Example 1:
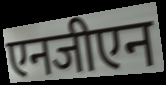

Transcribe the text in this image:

एनजीएन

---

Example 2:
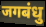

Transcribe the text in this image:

जगबंधु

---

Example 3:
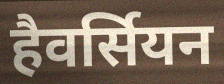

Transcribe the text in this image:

हैवर्सियन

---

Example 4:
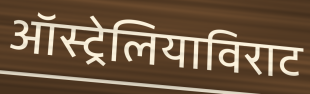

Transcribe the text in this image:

ऑस्ट्रेलियाविराट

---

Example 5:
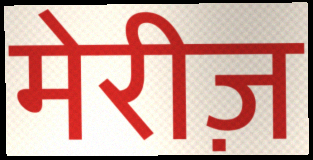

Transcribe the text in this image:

मेरीज़